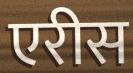
एरीस